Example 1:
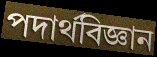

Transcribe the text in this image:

পদার্থবিজ্ঞান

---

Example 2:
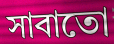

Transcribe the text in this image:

সাবাতো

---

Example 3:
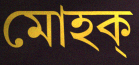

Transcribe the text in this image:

মোহক্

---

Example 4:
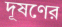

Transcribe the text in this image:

দূষণের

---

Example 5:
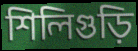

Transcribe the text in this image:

শিলিগুড়ি